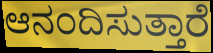
ಆನಂದಿಸುತ್ತಾರೆ